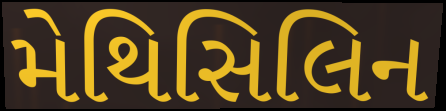
મેથિસિલિન